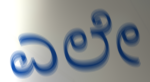
ಎಲೇ